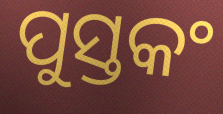
ପୁସ୍ତକଂ